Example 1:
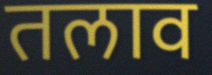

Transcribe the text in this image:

तलाव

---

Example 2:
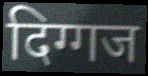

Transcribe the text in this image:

दिग्गज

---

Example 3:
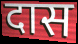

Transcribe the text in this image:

दास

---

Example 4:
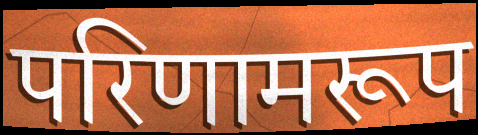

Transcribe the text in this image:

परिणामरूप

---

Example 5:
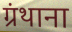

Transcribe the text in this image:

ग्रंथाना